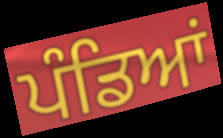
ਪੰਡਿਆਂ